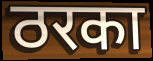
ठरका